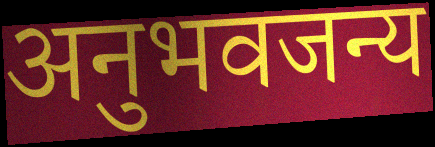
अनुभवजन्य